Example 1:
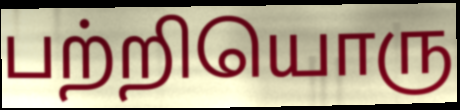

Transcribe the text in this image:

பற்றியொரு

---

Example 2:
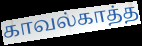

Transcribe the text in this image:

காவல்காத்த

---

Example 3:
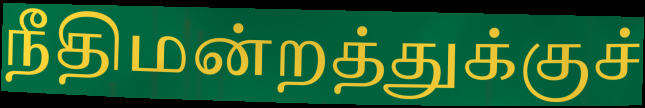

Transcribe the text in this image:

நீதிமன்றத்துக்குச்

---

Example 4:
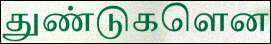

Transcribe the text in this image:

துண்டுகளென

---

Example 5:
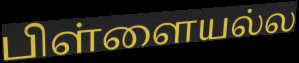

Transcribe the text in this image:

பிள்ளையல்ல